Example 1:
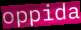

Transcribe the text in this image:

oppida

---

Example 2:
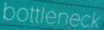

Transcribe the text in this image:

bottleneck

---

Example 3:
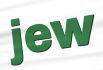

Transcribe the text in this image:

jew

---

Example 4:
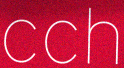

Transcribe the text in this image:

cch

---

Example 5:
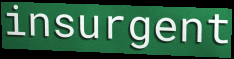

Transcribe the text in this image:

insurgent